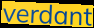
verdant